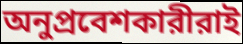
অনুপ্রবেশকারীরাই